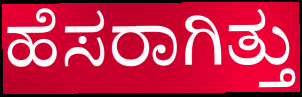
ಹೆಸರಾಗಿತ್ತು